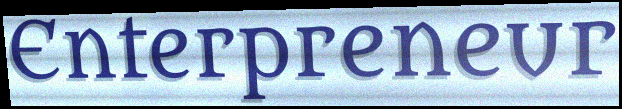
Enterpreneur